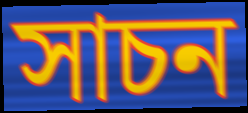
সাচন